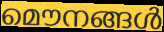
മൌനങ്ങൾ